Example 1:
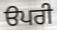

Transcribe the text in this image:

ੳਪਰੀ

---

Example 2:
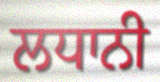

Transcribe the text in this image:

ਲਧਾਨੀ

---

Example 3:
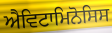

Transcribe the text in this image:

ਐਵਿਟਾਮਿਨੋਸਿਸ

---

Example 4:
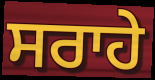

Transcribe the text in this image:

ਸਰਾਹੇ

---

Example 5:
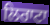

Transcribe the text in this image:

ਲਿਰਾਟਾ